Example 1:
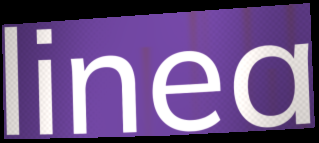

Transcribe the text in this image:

linea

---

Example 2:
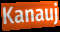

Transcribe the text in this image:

Kanauj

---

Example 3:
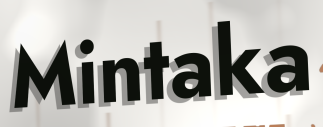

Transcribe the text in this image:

Mintaka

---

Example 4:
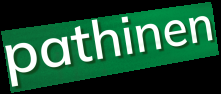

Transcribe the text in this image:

pathinen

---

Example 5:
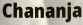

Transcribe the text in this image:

Chananja